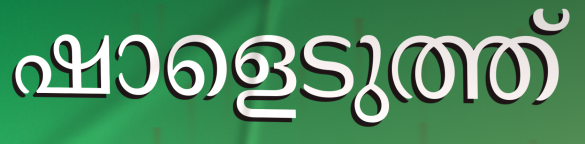
ഷാളെടുത്ത്